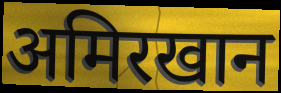
अमिरखान